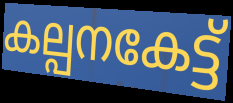
കല്പനകേട്ട്